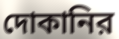
দোকানির